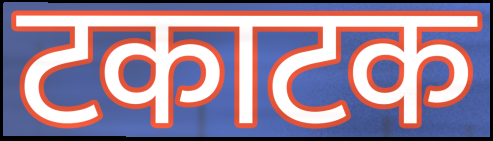
टकाटक